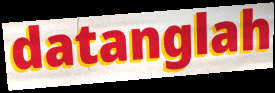
datanglah